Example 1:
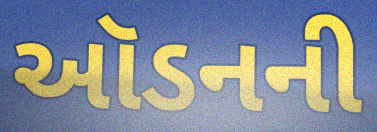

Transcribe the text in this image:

ઑડનની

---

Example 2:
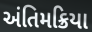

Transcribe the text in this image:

અંતિમક્રિયા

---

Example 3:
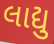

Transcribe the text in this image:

લાદ્યુ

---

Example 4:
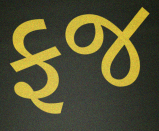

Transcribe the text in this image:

ફજ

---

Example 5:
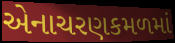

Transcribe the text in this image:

એનાચરણકમળમાં